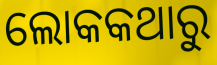
ଲୋକକଥାରୁ